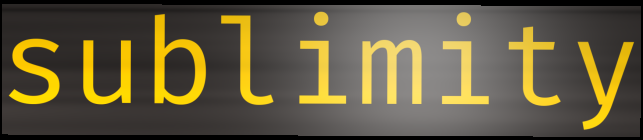
sublimity